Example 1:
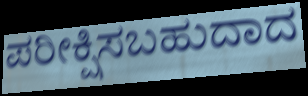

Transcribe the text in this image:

ಪರೀಕ್ಷಿಸಬಹುದಾದ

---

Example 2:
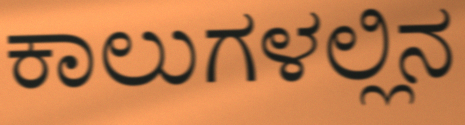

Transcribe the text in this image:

ಕಾಲುಗಳಲ್ಲಿನ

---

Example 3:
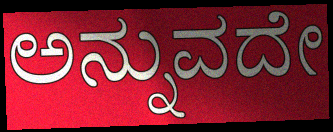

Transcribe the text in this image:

ಅನ್ನುವದೇ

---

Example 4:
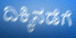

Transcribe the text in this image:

ದಿಕ್ಕಿನಡೆಗೆ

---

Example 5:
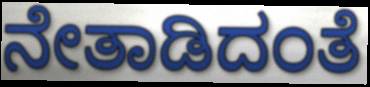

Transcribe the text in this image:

ನೇತಾಡಿದಂತೆ